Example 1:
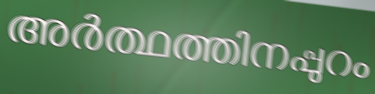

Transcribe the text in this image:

അർത്ഥത്തിനപ്പുറം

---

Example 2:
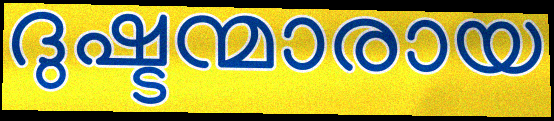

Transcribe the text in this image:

ദുഷ്ടന്മാരായ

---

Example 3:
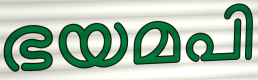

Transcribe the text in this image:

ഭയമപി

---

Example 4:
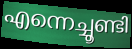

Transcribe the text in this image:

എന്നെച്ചൂണ്ടി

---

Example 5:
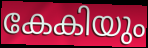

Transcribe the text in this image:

കേകിയും